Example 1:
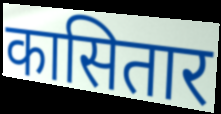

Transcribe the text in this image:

कासितार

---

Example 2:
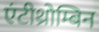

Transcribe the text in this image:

एंटीथ्रोम्बिन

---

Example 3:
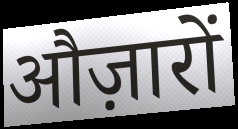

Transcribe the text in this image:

औज़ारों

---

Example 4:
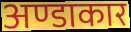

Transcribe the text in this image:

अण्डाकार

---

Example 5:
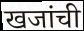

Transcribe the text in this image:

खजांची